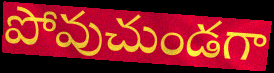
పోవుచుండగా